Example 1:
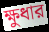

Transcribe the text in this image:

ক্ষুধার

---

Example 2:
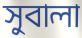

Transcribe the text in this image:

সুবালা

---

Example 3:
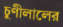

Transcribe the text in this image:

চুণীলালের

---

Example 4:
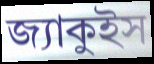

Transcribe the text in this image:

জ্যাকুইস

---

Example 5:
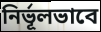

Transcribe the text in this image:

নির্ভূলভাবে